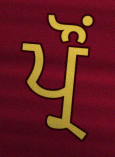
ਪ੍ਰੌਂ